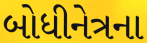
બોધીનેત્રના